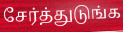
சேர்த்துடுங்க